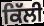
ਕਿੱਲੀ